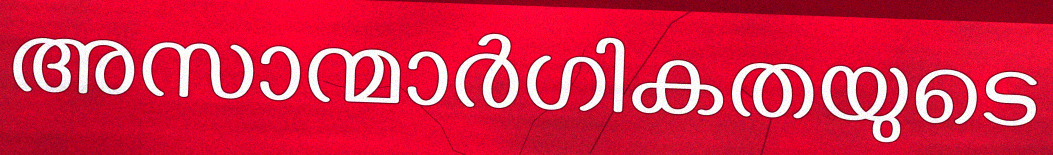
അസാന്മാർഗികതയുടെ